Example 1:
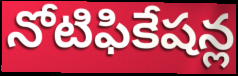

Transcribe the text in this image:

నోటిఫికేషన్ల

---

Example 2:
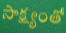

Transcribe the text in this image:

సాక్ష్యంతో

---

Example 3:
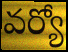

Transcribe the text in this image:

వర్యో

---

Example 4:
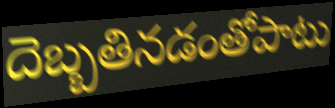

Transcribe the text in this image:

దెబ్బతినడంతోపాటు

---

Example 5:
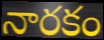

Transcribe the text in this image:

నారకం